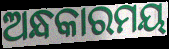
ଅନ୍ଧକାରମୟ